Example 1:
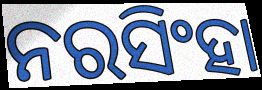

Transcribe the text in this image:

ନରସିଂହା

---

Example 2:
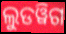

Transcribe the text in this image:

ଲୁଡୱିଗ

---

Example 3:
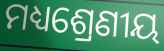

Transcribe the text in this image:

ମଧ୍ୟଶ୍ରେଣୀୟ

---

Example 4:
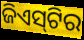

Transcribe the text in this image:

ଜିଏସ୍‌ଟିର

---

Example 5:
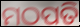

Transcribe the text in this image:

ମଠପତି